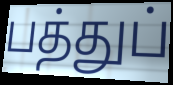
பத்துப்